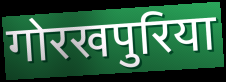
गोरखपुरिया